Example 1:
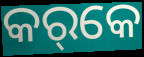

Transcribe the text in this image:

କର୍‌କେ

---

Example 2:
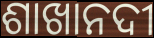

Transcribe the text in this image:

ଶାଖାନଦୀ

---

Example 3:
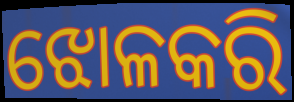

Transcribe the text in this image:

ଝୋଳକରି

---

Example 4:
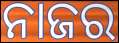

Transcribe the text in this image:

ନାଜର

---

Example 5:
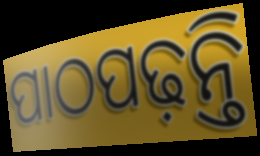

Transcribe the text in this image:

ପାଠପଢ଼ନ୍ତି